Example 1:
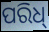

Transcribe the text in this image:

ପରିଧ୍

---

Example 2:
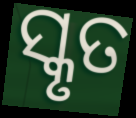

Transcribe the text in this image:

ସ୍କୃତ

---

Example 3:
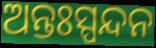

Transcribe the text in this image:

ଅନ୍ତଃସ୍ପନ୍ଦନ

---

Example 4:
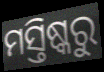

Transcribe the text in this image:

ମସ୍ତିଷ୍କରୁ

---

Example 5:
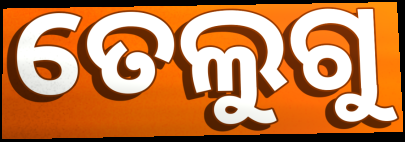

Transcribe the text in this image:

ତେଲୁଗୁ